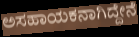
ಅಸಹಾಯಕನಾಗಿದ್ದೇನೆ